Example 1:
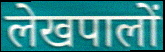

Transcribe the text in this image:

लेखपालों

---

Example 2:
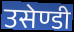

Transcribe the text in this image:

उसेण्डी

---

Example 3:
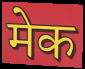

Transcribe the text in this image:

मेक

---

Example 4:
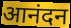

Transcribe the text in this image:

आनंदन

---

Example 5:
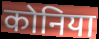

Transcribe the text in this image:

कोनिया